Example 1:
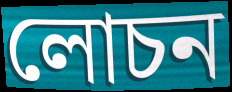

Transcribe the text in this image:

লোচন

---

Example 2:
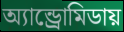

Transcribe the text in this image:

অ্যান্ড্রোমিডায়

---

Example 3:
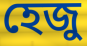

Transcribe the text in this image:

হেজু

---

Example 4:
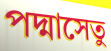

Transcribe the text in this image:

পদ্মাসেতু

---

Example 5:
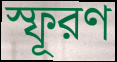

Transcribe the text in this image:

স্ফূরণ